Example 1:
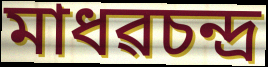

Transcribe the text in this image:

মাধৱচন্দ্ৰ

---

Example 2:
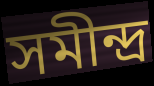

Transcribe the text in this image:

সমীন্দ্ৰ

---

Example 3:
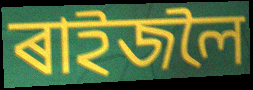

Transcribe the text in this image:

ৰাইজলৈ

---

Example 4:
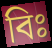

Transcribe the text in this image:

বিঃ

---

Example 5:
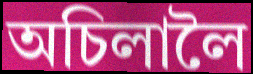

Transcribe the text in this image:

অচিলালৈ